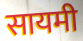
सायमी